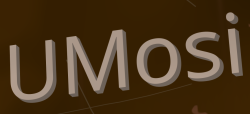
UMosi